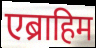
एब्राहिम